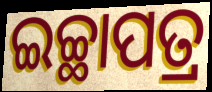
ଇଚ୍ଛାପତ୍ର